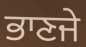
ਭਾਣਜੇ